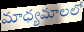
మాధ్యమాలలో